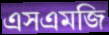
এসএমজি